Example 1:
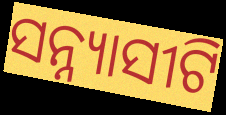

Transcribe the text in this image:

ସନ୍ନ୍ୟାସୀଟି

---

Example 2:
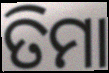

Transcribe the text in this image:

ତିମା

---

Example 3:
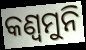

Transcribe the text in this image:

କଣ୍ୱମୁନି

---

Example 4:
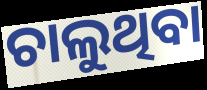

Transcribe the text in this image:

ଚାଲୁଥିବା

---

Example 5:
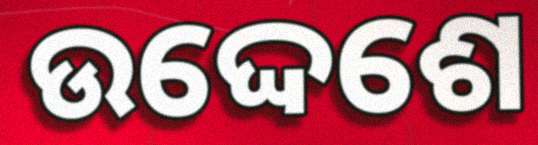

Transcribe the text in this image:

ଉଦ୍ଦେଶେ